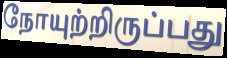
நோயுற்றிருப்பது